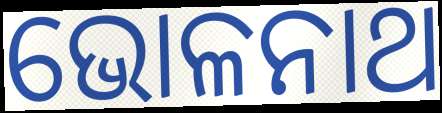
ଭୋଳନାଥ